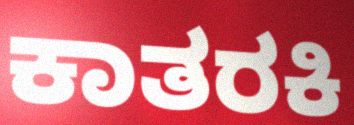
ಕಾತರಕಿ